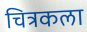
चित्रकला